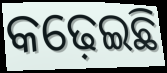
କଢ଼େଇଛି